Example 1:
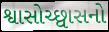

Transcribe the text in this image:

શ્વાસોચ્છ્વાસનો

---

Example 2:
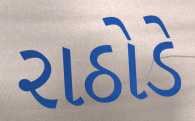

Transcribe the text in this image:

રાઠોડે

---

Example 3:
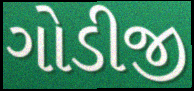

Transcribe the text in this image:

ગોડીજી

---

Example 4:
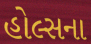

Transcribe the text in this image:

હોલ્સના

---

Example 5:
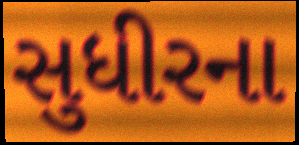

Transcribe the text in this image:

સુધીરના